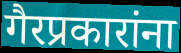
गैरप्रकारांना